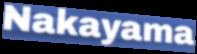
Nakayama